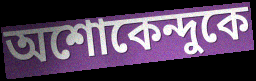
অশোকেন্দুকে